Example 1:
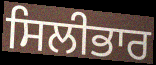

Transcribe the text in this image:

ਸਿਲੀਭਾਰ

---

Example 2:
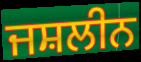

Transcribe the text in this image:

ਜਸ਼ਲੀਨ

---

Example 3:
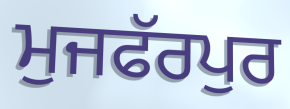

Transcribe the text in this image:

ਮੁਜਫੱਰਪੁਰ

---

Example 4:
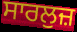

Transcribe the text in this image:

ਸਾਰਲੁਜ਼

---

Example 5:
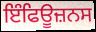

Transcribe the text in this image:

ਇੰਫਿਊਜ਼ਨਸ